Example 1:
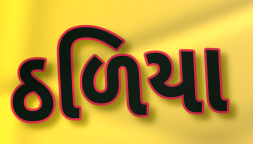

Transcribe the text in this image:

ઠળિયા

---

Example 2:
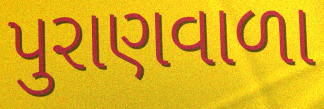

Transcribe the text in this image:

પુરાણવાળા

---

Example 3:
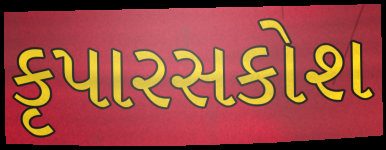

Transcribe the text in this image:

કૃપારસકોશ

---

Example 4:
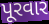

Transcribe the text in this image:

પૂરવાર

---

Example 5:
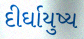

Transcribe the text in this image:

દીર્ઘાયુષ્ય